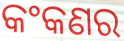
କଂକଣର